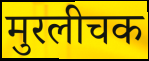
मुरलीचक